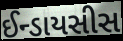
ઈન્ડાયસીસ